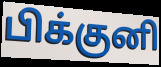
பிக்குனி